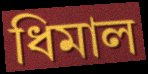
ধিমাল